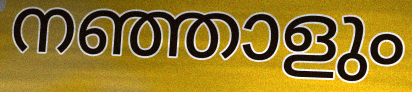
നഞ്ഞാളും